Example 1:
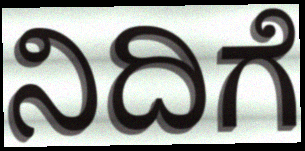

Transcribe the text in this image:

ನಿದಿಗೆ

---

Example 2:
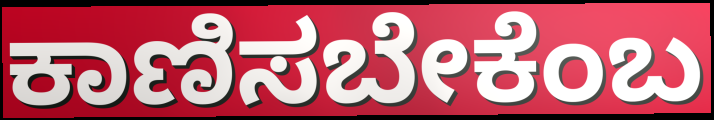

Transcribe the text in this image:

ಕಾಣಿಸಬೇಕೆಂಬ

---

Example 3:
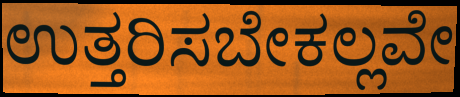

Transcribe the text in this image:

ಉತ್ತರಿಸಬೇಕಲ್ಲವೇ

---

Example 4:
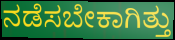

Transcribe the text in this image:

ನಡೆಸಬೇಕಾಗಿತ್ತು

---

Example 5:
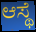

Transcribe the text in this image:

ಆಸ್ಥೆ